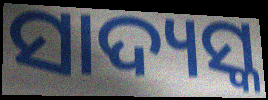
ସାଦ୍ୟସ୍କ